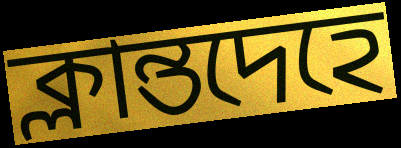
ক্লান্তদেহে